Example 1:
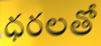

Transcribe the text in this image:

ధరలతో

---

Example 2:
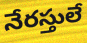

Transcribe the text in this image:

నేరస్తులే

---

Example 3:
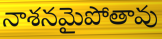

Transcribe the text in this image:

నాశనమైపోతావు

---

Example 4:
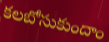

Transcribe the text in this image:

కలబోసుకుందాం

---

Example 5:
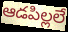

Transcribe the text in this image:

ఆడపిల్లలే